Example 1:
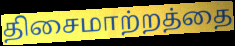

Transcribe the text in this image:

திசைமாற்றத்தை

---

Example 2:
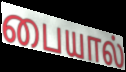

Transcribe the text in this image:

பையால்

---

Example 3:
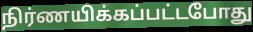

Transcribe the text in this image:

நிர்ணயிக்கப்பட்டபோது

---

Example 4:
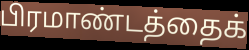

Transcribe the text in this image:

பிரமாண்டத்தைக்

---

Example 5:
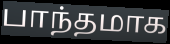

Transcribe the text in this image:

பாந்தமாக